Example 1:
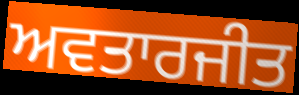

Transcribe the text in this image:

ਅਵਤਾਰਜੀਤ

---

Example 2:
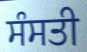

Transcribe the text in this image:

ਸੰਸਤੀ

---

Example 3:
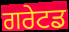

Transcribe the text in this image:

ਗਰੇਟਡ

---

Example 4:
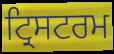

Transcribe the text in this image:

ਟ੍ਰਿਸਟਰਮ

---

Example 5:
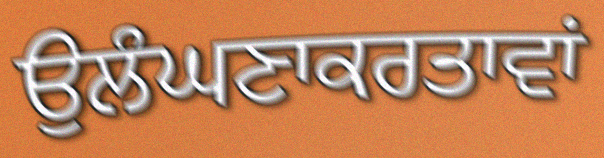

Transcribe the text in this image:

ਉਲੰਘਣਾਕਰਤਾਵਾਂ